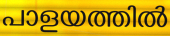
പാളയത്തിൽ